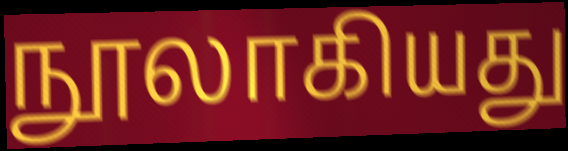
நூலாகியது